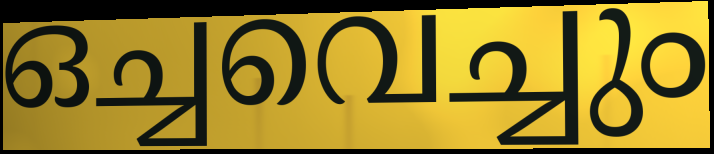
ഒച്ചവെച്ചും